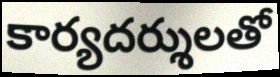
కార్యదర్శులతో